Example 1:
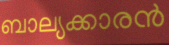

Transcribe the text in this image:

ബാല്യക്കാരൻ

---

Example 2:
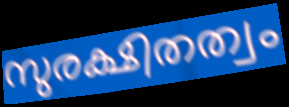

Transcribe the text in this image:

സുരക്ഷിതത്വം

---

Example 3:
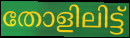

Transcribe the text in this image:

തോളിലിട്ട്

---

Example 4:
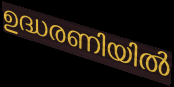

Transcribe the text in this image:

ഉദ്ധരണിയിൽ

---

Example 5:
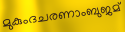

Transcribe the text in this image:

മുകുംദചരണാംബുജമ്